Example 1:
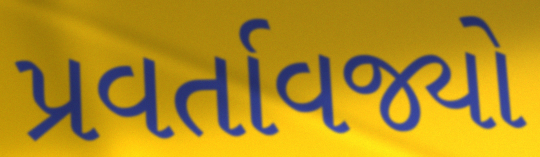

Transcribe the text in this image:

પ્રવર્તાવજ્યો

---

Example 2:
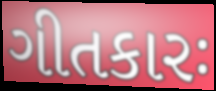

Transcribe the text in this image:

ગીતકારઃ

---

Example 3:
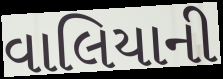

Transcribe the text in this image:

વાલિયાની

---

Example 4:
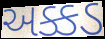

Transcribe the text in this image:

અક્કડ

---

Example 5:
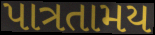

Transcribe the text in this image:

પાત્રતામય